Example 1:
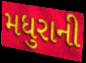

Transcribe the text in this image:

મધુરાની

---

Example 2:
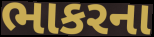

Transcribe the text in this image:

ભાકરના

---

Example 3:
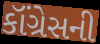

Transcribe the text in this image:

કૉંગ્રેસની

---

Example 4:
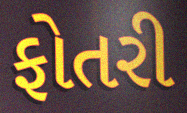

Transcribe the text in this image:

ફોતરી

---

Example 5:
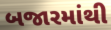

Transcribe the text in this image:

બજારમાંથી